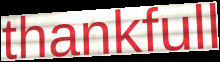
thankfull